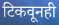
टिकवूनही